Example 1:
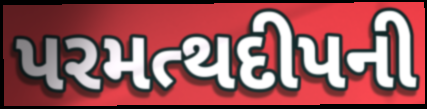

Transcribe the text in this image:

પરમત્થદીપની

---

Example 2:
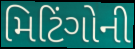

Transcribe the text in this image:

મિટિંગોની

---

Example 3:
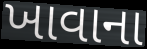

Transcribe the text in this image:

ખાવાના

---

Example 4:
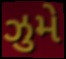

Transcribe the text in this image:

ઝુમે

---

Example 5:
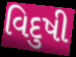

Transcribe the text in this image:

વિદુષી